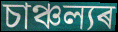
চাঞ্চল্যৰ